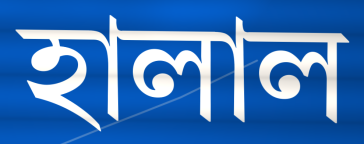
হালাল